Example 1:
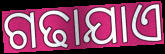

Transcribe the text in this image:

ଗଢାଯାଏ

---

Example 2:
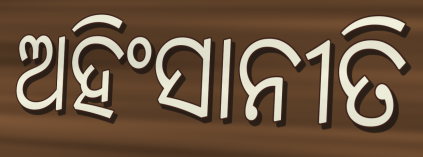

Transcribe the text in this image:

ଅହିଂସାନୀତି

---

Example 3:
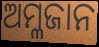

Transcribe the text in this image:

ଅମ୍ଳଜାନ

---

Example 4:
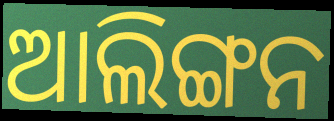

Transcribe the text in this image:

ଆଲିଙ୍ଗନ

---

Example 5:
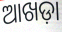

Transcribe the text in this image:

ଆଖଡ଼ା